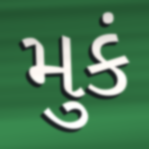
મુકં